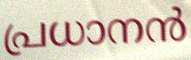
പ്രധാനൻ